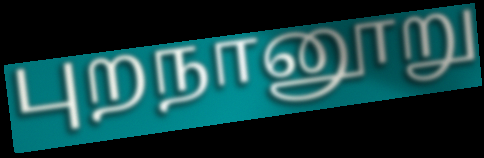
புறநானூறு